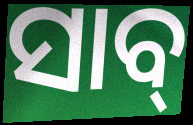
ସାବ୍